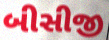
બીસીજી